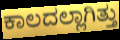
ಕಾಲದಲ್ಲಾಗಿತ್ತು